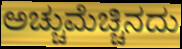
ಅಚ್ಚುಮೆಚ್ಚಿನದು